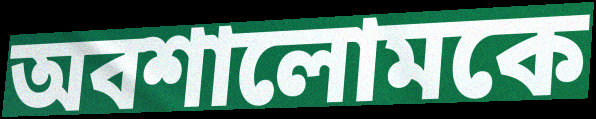
অবশালোমকে